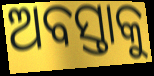
ଅବସ୍ତାକୁ